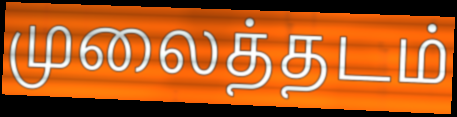
முலைத்தடம்